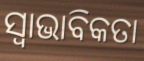
ସ୍ବାଭାବିକତା